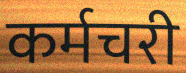
कर्मचरी